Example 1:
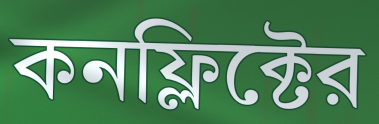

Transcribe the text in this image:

কনফ্লিক্টের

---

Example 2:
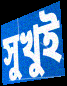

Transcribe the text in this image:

সুখুই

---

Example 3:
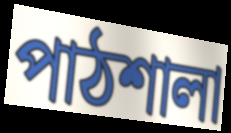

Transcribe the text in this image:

পাঠশালা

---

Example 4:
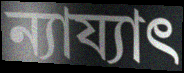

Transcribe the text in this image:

ন্যায্যাৎ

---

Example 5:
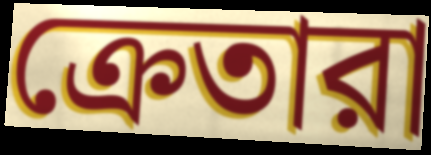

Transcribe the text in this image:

ক্রেতারা